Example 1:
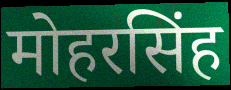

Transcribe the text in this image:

मोहरसिंह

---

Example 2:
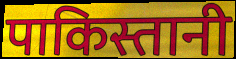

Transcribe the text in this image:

पाकिस्तानी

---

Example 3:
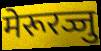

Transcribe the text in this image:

मेरूरज्जु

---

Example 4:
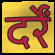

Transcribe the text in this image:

दर्रें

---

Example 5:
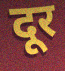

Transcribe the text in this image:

दूर